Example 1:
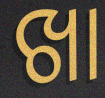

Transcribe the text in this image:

ଖା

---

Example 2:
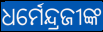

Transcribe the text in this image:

ଧର୍ମେନ୍ଦ୍ରଜୀଙ୍କ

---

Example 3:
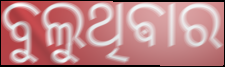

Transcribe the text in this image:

ବୁଲୁଥିଵାର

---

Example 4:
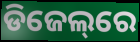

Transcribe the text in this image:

ଡିଜେଲ୍‌ରେ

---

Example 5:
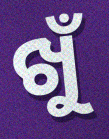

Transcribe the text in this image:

ଖୁଁ